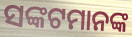
ସଙ୍କଟମାନଙ୍କ